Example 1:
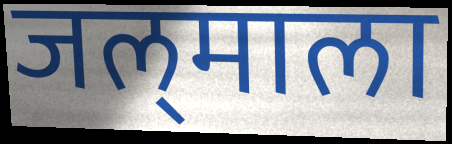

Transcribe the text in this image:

जल्माला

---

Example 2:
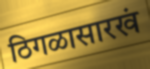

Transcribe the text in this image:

ठिगळासारखं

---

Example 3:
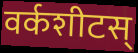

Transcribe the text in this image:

वर्कशीटस्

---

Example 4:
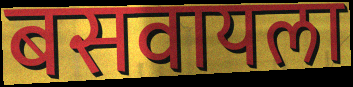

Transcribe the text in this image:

बसवायला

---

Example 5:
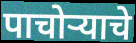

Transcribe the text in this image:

पाचोऱ्याचे